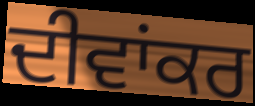
ਦੀਵਾਂਕਰ